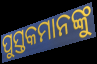
ପୁସ୍ତକମାନଙ୍କୁ